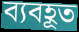
ব্যবহূত